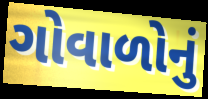
ગોવાળોનું